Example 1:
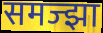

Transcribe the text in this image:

समज्झा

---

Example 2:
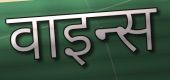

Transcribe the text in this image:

वाइन्स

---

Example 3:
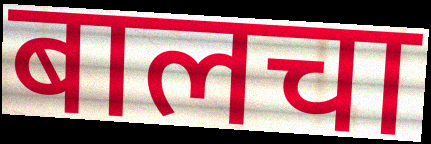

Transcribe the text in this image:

बालचा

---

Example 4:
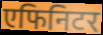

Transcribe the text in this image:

एफिनिटर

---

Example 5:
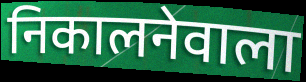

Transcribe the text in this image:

निकालनेवाला